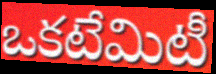
ఒకటేమిటీ